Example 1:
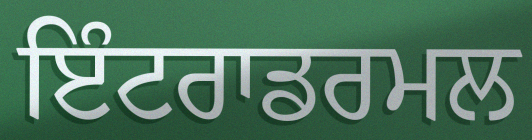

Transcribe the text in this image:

ਇੰਟਰਾਡਰਮਲ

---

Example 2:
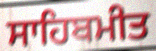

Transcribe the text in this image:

ਸਾਹਿਬਮੀਤ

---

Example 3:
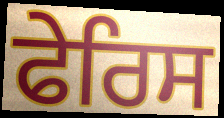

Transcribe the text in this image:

ਫੇਰਿਸ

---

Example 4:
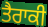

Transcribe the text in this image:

ਤੈਰਾਕੀ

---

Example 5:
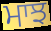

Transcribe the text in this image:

ਮਾਝ